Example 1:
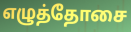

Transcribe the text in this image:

எழுத்தோசை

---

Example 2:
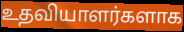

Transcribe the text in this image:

உதவியாளர்களாக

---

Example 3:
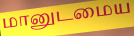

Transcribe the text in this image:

மானுடமைய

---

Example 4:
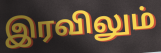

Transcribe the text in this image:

இரவிலும்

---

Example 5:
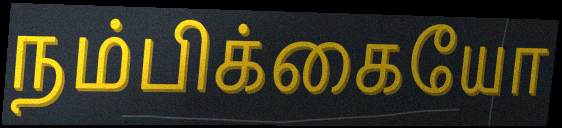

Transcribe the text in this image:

நம்பிக்கையோ